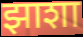
झाशा